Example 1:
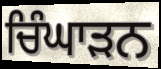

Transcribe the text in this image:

ਚਿੰਘਾੜਨ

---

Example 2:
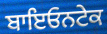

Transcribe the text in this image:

ਬਾਇਓਨਟੇਕ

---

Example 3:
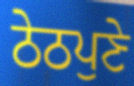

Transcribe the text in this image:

ਠੇਠਪੁਣੇ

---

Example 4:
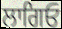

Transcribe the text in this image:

ਲਾਗਿਓ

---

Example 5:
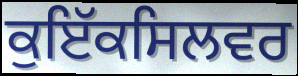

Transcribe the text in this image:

ਕੁਇੱਕਸਿਲਵਰ